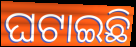
ଘଟାଇଛି